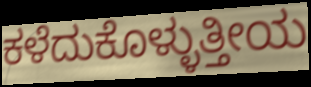
ಕಳೆದುಕೊಳ್ಳುತ್ತೀಯ